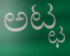
ಅಟ್ಟ